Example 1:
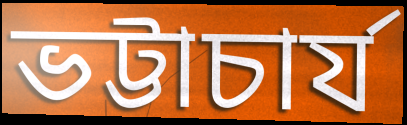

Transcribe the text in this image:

ভট্টাচাৰ্য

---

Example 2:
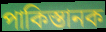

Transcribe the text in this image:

পাকিস্তানক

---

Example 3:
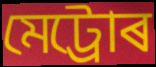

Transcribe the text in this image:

মেট্ৰোৰ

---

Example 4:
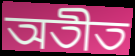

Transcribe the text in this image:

অতীত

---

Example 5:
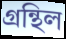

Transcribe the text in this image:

গ্ৰন্থিল